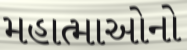
મહાત્માઓનો